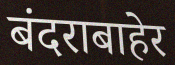
बंदराबाहेर